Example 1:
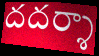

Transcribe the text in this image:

దదర్శా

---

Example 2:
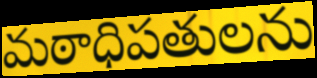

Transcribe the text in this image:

మఠాధిపతులను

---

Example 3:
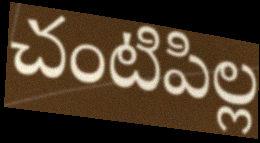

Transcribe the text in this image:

చంటిపిల్ల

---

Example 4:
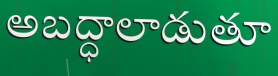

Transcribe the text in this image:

అబద్ధాలాడుతూ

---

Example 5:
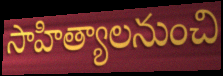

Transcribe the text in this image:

సాహిత్యాలనుంచి